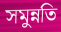
সমুন্নতি